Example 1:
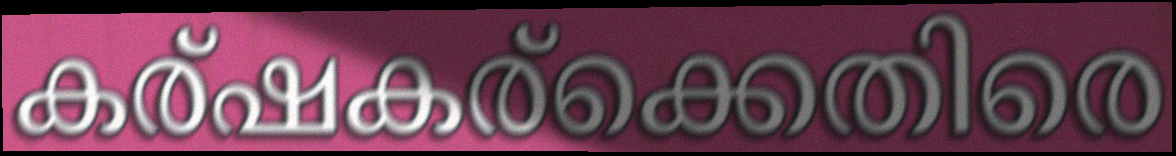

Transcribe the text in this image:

കര്ഷകര്ക്കെതിരെ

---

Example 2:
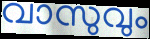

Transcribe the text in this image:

വാസുവും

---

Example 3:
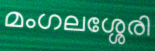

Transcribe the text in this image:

മംഗലശ്ശേരി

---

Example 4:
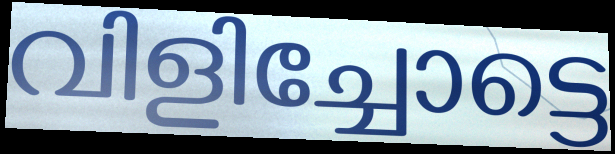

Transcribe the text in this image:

വിളിച്ചോട്ടെ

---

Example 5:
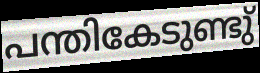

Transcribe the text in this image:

പന്തികേടുണ്ടു്